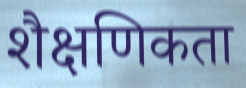
शैक्षणिकता